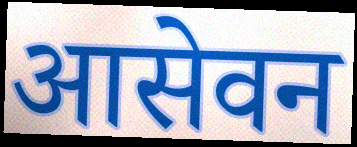
आसेवन